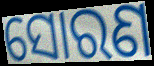
ସୋରଣ